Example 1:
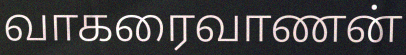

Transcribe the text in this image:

வாகரைவாணன்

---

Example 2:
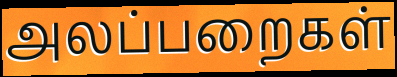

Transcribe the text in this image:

அலப்பறைகள்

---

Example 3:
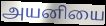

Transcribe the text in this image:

அயனியை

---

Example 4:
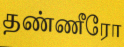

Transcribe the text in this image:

தண்ணீரோ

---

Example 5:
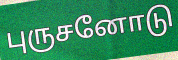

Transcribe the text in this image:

புருசனோடு